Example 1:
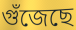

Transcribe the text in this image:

গুঁজেছে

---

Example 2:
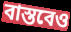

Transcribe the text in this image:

বাস্তবেও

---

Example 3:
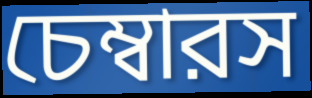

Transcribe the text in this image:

চেম্বারস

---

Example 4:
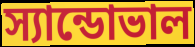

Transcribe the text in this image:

স্যান্ডোভাল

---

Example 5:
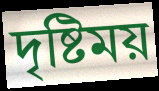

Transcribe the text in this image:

দৃষ্টিময়